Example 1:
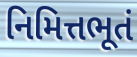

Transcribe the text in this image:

નિમિત્તભૂતં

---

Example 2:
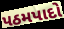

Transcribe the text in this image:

પઠમપાદો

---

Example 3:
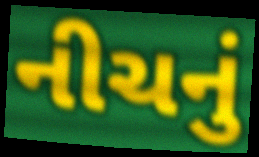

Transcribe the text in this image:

નીચનું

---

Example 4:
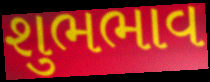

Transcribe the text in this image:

શુભભાવ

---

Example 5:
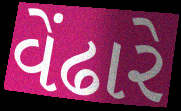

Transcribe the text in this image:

વેંઢારે